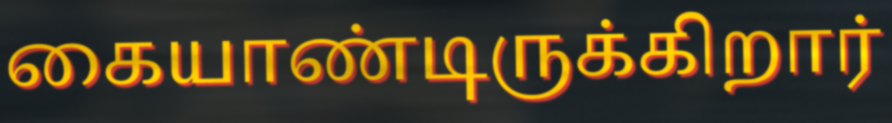
கையாண்டிருக்கிறார்